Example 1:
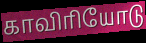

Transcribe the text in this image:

காவிரியோடு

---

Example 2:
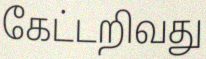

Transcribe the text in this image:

கேட்டறிவது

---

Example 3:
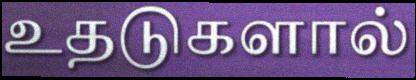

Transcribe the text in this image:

உதடுகளால்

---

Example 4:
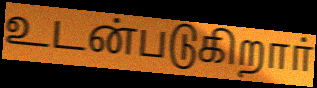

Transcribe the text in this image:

உடன்படுகிறார்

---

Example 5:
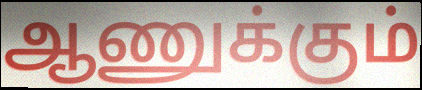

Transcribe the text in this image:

ஆணுக்கும்